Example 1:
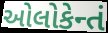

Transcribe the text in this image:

ઓલોકેન્તં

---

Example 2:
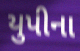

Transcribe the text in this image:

યુપીના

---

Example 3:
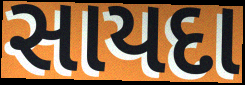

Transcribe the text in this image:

સાયદા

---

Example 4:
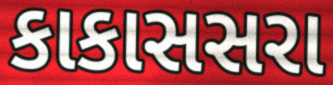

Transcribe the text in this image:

કાકાસસરા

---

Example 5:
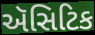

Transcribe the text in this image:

ઍસિટિક